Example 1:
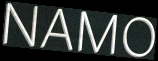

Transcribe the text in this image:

NAMO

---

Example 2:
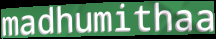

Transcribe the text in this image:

madhumithaa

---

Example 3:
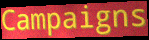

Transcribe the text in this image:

Campaigns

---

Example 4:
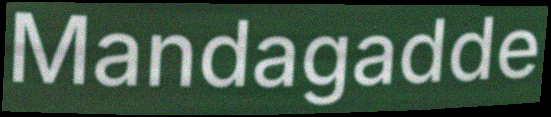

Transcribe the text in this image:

Mandagadde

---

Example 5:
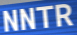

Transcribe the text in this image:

NNTR